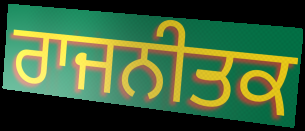
ਰਾਜਨੀਤਕ